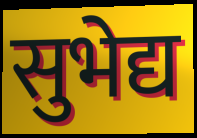
सुभेद्य